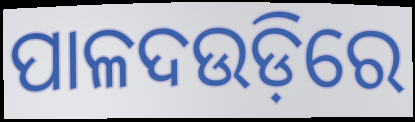
ପାଳଦଉଡ଼ିରେ